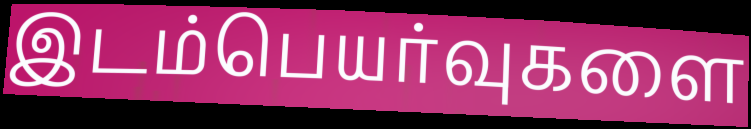
இடம்பெயர்வுகளை